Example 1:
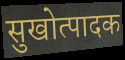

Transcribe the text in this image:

सुखोत्पादक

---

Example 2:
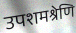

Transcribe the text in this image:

उपशमश्रेणि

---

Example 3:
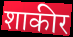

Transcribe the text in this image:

शाकीर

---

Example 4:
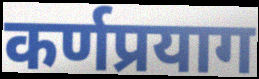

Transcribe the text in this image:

कर्णप्रयाग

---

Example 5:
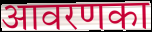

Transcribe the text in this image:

आवरणका